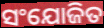
ସଂଯୋଜିତ